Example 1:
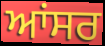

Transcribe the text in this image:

ਆਂਸਰ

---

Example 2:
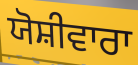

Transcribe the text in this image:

ਯੋਸ਼ੀਵਾਰਾ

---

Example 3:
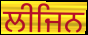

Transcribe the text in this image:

ਲੀਜਿਨ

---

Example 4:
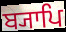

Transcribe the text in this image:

ਬ੍ਯਾਪਿ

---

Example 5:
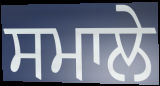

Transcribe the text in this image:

ਸਮਾਲੇ